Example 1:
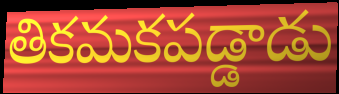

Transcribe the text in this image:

తికమకపడ్డాడు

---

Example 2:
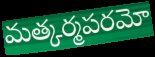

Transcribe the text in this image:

మత్కర్మపరమో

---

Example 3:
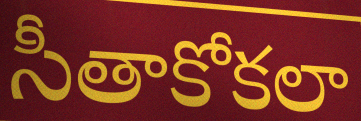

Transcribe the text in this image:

సీతాకోకలా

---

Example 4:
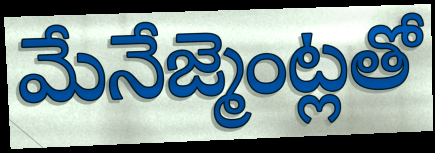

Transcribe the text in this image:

మేనేజ్మెంట్లతో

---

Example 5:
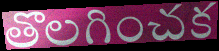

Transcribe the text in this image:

తొలగించక